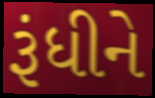
રૂંધીને